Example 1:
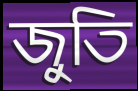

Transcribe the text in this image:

জুতি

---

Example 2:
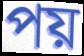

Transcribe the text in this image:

পয়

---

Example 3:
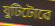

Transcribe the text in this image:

যুটিটোৱে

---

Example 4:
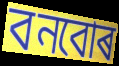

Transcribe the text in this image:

বনবোৰ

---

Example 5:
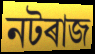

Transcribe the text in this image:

নটৰাজ